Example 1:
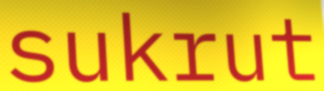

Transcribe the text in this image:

sukrut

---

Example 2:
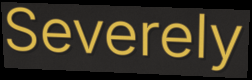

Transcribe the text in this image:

Severely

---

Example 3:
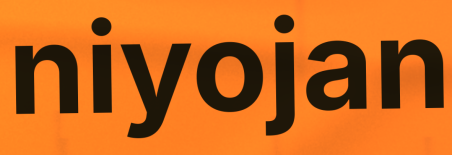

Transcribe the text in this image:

niyojan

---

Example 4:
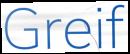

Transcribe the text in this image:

Greif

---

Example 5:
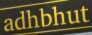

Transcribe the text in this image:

adhbhut